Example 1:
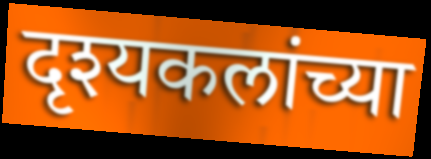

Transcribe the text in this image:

दृश्यकलांच्या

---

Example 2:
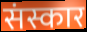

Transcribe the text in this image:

संस्‍कार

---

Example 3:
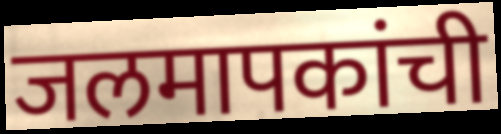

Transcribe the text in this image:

जलमापकांची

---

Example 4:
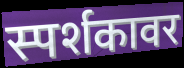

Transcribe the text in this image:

स्पर्शकावर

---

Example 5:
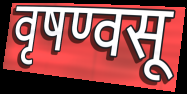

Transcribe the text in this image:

वृषण्वसू